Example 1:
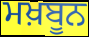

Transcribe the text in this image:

ਮਖ਼ਬੂਨ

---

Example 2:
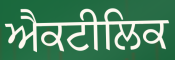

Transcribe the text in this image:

ਐਕਟੀਲਿਕ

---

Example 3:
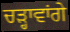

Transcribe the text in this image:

ਚੜ੍ਹਾਵਾਂਗੇ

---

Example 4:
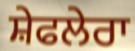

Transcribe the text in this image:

ਸ਼ੇਫਲੇਰਾ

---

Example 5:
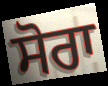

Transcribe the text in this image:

ਸੋਰਾ